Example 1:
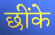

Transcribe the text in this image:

छींके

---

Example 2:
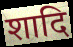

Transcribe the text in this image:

शादि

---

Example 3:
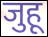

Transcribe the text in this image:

जुहू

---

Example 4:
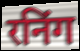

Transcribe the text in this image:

रनिंग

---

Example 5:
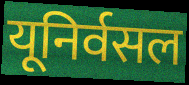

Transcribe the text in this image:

यूनिर्वसल